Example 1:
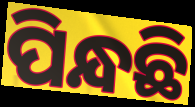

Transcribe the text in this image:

ପିନ୍ଧଛି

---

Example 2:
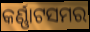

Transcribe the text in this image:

କର୍ଣ୍ଣାଟସମର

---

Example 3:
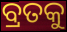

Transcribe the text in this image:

ବ୍ରତକୁ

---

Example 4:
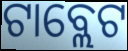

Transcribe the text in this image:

ଟାବ୍ଲେଟ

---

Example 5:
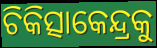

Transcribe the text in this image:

ଚିକିତ୍ସାକେନ୍ଦ୍ରକୁ